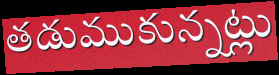
తడుముకున్నట్లు